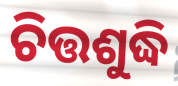
ଚିତ୍ତଶୁଦ୍ଧି